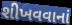
શીખવવાનાં